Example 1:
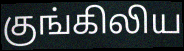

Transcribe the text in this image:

குங்கிலிய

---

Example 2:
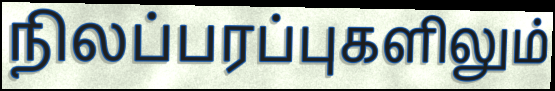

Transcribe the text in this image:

நிலப்பரப்புகளிலும்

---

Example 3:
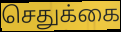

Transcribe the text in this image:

செதுக்கை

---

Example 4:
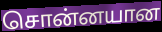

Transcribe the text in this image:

சொன்னயான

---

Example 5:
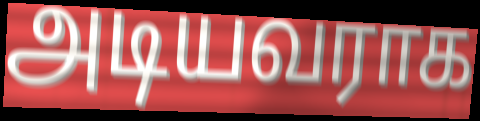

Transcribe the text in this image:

அடியவராக